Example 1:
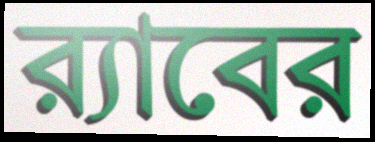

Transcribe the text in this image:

র‍্যাবের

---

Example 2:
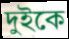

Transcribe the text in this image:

দুইকে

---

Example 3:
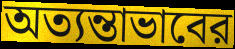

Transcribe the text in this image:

অত্যন্তাভাবের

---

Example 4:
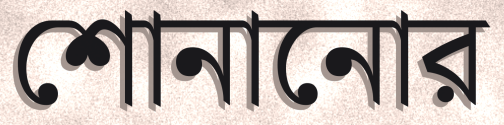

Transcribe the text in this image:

শোনানোর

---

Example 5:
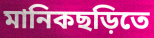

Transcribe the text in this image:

মানিকছড়িতে